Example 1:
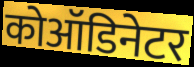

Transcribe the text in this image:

कोऑडिनेटर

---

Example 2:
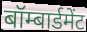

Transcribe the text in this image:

बॉम्बार्डमेंट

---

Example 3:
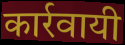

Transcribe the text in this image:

कार्रवायी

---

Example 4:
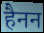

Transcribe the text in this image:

हैनन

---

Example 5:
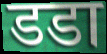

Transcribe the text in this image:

डडा